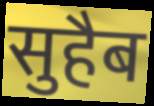
सुहैब